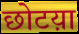
छोटय़ा